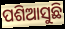
ପଶିଆସୁଛି